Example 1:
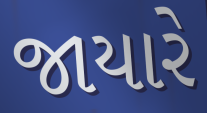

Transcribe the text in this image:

જાયારે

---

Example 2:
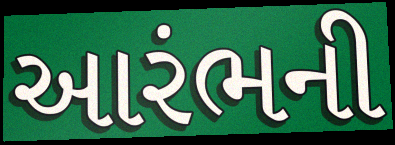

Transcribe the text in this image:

આરંભની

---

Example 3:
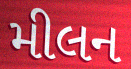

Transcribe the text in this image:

મીલન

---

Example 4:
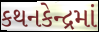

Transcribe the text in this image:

કથનકેન્દ્રમાં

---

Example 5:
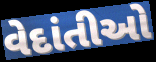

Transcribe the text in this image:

વેદાંતીઓ